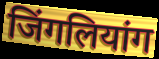
जिंगलियांग